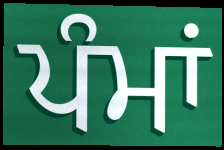
ਪੰਮਾਂ